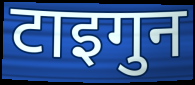
टाइगुन